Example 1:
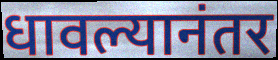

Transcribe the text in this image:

धावल्यानंतर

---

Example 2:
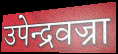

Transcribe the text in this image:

उपेन्द्रवज्रा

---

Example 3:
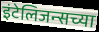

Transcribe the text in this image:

इंटेलिजन्सच्या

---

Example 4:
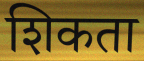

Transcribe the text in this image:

शिकता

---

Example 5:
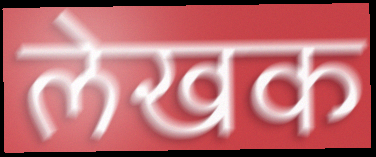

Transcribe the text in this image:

लेखक